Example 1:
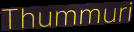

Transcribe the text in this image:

Thummuri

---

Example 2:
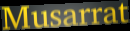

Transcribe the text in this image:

Musarrat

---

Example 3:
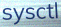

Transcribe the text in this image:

sysctl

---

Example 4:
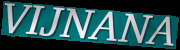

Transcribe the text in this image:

VIJNANA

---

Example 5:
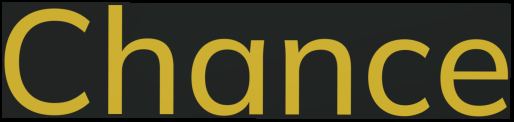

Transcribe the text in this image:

Chance